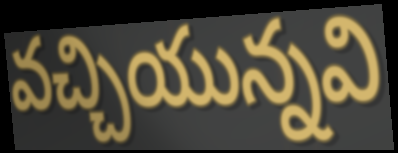
వచ్చియున్నవి